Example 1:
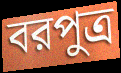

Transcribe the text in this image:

বরপুত্র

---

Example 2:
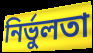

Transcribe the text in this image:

নির্ভুলতা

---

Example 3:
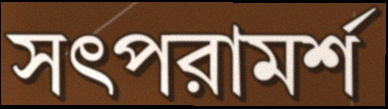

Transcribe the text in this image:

সৎপরামর্শ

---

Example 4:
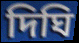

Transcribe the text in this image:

দিঘি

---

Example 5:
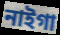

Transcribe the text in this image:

নাইগা